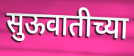
सुऊवातीच्या